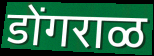
डोंगराळ